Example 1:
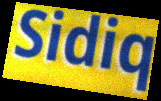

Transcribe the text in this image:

Sidiq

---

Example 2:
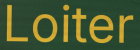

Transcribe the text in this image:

Loiter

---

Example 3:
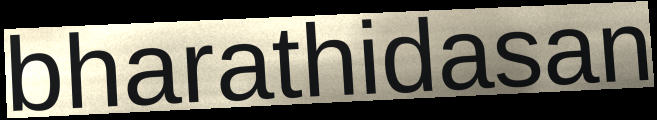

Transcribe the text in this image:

bharathidasan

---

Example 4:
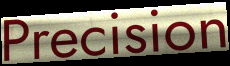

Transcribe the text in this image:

Precision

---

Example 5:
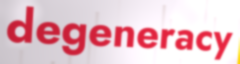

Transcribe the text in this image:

degeneracy